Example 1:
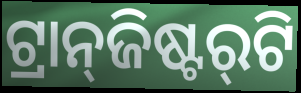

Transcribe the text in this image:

ଟ୍ରାନ୍‌ଜିଷ୍ଟର୍‌ଟି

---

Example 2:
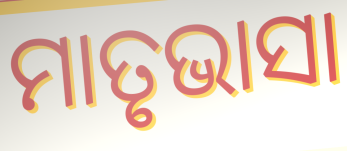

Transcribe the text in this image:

ମାତୃଭାସା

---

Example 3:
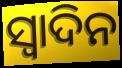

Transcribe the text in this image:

ସ୍ବାଦିନ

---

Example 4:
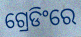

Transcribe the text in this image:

ଗ୍ରେଡିଂରେ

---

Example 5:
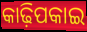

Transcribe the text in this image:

କାଢ଼ିପକାଇ